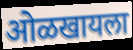
ओळखायला